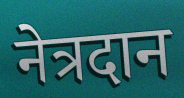
नेत्रदान